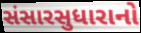
સંસારસુધારાનો